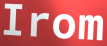
Irom